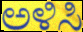
ಅಳಿಸಿ